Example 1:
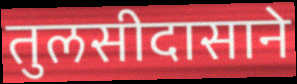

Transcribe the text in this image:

तुलसीदासाने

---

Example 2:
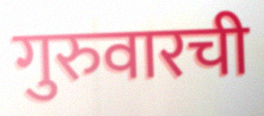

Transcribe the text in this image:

गुरुवारची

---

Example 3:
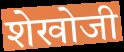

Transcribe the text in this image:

शेखोजी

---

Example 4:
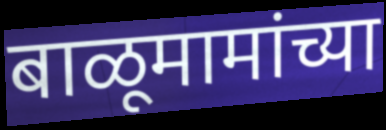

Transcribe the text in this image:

बाळूमामांच्या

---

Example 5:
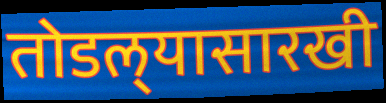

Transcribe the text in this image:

तोडल्यासारखी